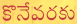
కొనేవరకు